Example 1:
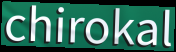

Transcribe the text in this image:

chirokal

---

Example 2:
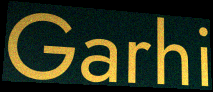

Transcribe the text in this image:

Garhi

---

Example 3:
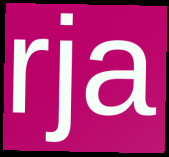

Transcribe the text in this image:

rja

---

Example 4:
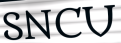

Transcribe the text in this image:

SNCU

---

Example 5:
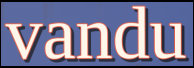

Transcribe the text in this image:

vandu